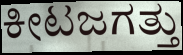
ಕೀಟಜಗತ್ತು